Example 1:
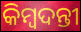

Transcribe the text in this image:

କିମ୍ଵଦନ୍ତୀ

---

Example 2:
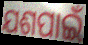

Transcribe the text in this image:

ଯଶପାଇଁ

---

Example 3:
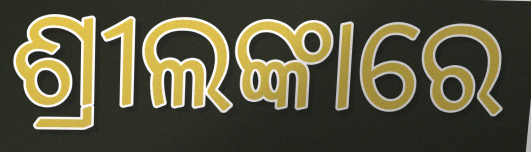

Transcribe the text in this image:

ଶ୍ରୀଲଙ୍କାରେ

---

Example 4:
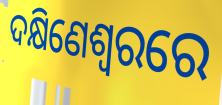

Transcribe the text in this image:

ଦକ୍ଷିଣେଶ୍ୱରରେ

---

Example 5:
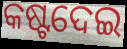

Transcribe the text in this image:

କଷ୍ଟଦେଇ